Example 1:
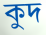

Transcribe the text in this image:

কুদ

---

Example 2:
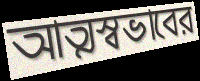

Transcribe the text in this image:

আত্মস্বভাবের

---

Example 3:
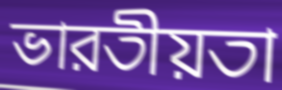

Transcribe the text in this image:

ভারতীয়তা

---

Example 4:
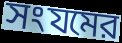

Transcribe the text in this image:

সংযমের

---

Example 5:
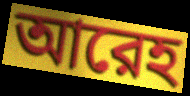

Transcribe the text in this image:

আরেহ